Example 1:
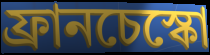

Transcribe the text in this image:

ফ্রানচেস্কো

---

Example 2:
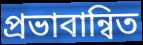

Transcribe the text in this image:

প্রভাবান্বিত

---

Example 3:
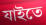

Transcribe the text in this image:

যাইতে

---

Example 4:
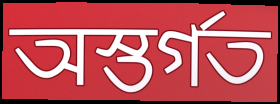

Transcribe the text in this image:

অস্তর্গত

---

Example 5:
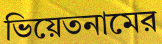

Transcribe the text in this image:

ভিয়েতনামের